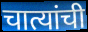
चात्यांची